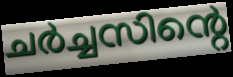
ചർച്ചസിന്റെ